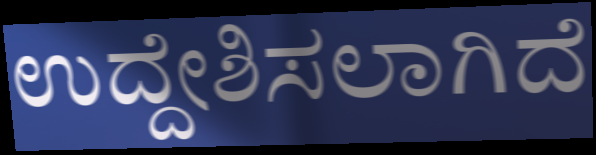
ಉದ್ದೇಶಿಸಲಾಗಿದೆ